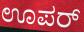
ಊಪರ್